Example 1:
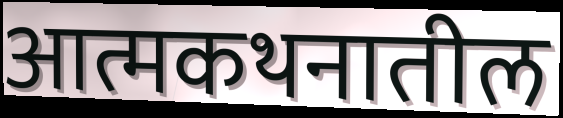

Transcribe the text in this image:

आत्मकथनातील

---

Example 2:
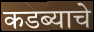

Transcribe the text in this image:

कडब्याचे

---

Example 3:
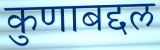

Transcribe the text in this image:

कुणाबद्दल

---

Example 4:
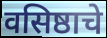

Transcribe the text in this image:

वसिष्ठाचे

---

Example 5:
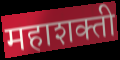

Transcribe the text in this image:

महाशक्‍ती